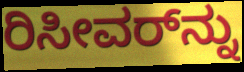
ರಿಸೀವರ್‌ನ್ನು